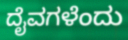
ದೈವಗಳೆಂದು